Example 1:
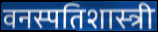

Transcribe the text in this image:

वनस्पतिशास्त्री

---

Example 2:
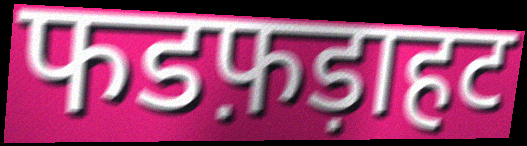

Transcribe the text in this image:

फडफ़ड़ाहट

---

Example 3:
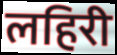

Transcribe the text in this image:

लहिरी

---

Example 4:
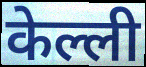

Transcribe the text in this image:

केल्ली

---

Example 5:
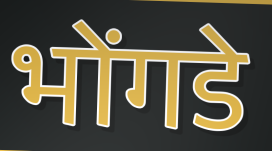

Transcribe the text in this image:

भोंगडे